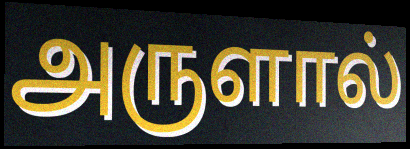
அருளால்